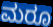
ಮರೂ